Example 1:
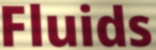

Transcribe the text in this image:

Fluids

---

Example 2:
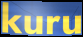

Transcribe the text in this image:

kuru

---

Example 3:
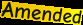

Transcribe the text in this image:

Amended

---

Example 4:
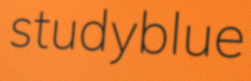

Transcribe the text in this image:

studyblue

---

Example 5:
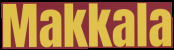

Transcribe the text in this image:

Makkala